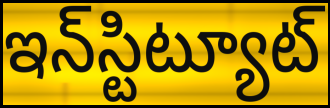
ఇన్‌స్టిట్యూట్